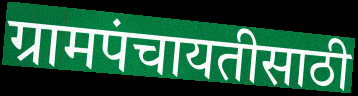
ग्रामपंचायतीसाठी